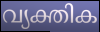
വ്യക്തിക